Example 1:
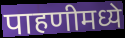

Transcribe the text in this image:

पाहणीमध्ये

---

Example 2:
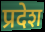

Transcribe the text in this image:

प्रदेश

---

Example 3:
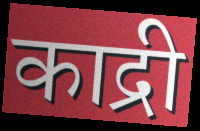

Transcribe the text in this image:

काद्री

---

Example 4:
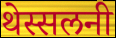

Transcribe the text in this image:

थेस्सलनी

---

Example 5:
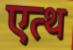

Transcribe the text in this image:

एत्थ